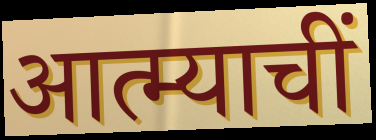
आत्म्याचीं